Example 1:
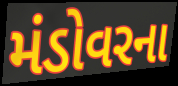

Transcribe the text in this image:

મંડોવરના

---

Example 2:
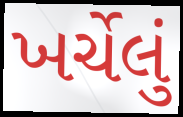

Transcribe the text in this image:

ખર્ચેલું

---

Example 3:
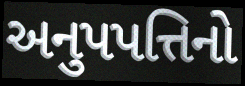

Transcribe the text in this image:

અનુપપત્તિનો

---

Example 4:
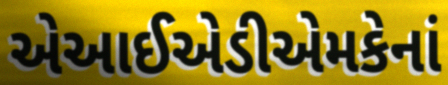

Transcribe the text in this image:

એઆઈએડીએમકેનાં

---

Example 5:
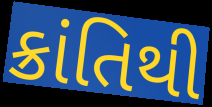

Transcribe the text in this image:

ક્રાંતિથી